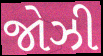
જોઝી